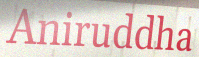
Aniruddha